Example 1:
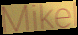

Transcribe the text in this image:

Mikel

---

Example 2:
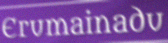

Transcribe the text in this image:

Erumainadu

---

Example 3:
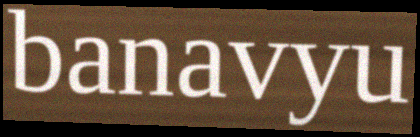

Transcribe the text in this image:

banavyu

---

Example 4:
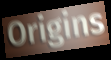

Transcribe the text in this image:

Origins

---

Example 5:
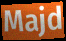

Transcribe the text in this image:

Majd